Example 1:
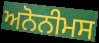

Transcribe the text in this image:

ਅਨੋਨੀਮਸ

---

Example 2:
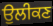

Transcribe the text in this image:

ਉਲੀਕਣ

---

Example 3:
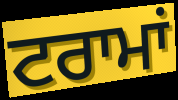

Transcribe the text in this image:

ਟਰਾਮਾਂ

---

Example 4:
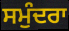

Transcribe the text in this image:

ਸਮੁੰਦਰਾ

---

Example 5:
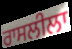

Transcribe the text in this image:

ਰਾਸਲੀਲਾ